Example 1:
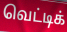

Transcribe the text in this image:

வெட்டிக்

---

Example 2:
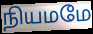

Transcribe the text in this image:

நியமமே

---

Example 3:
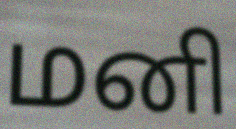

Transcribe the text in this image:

மனி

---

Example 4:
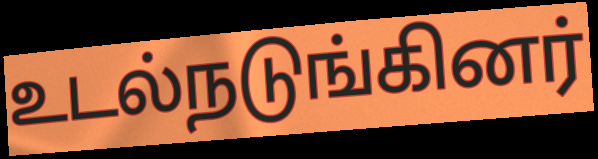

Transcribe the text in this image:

உடல்நடுங்கினர்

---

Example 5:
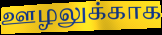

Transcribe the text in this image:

ஊழலுக்காக